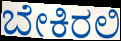
ಬೇಕಿರಲಿ